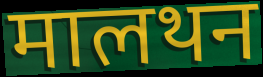
मालथन